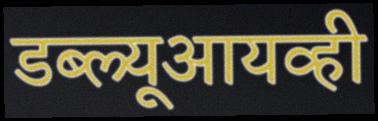
डब्ल्यूआयव्ही